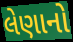
લેણાનો